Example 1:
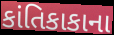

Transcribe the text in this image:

કાંતિકાકાના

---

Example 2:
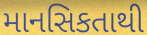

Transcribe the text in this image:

માનસિકતાથી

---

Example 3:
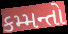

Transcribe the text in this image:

કમ્મન્તો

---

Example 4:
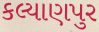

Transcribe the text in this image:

કલ્યાણપુર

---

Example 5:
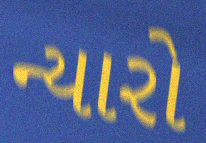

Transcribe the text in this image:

ન્યારો